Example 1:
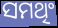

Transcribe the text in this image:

ସମଥିଂ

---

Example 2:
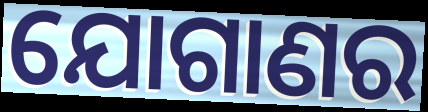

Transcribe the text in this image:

ଯୋଗାଣର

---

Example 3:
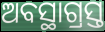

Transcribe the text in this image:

ଅବସ୍ଥାଗ୍ରସ୍ତ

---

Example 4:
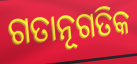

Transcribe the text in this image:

ଗତାନୂଗତିକ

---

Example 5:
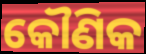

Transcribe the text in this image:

କୌଣିକ